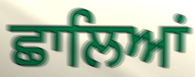
ਛਾਲਿਆਂ